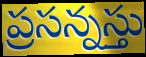
ప్రసన్నస్తు